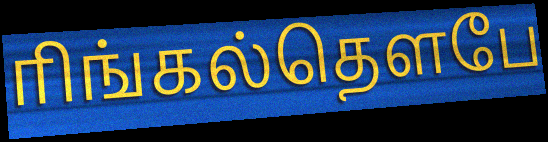
ரிங்கல்தௌபே